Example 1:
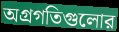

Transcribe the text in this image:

অগ্রগতিগুলোর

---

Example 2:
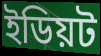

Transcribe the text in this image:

ইডিয়ট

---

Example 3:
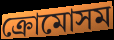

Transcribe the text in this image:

ক্রোমোসম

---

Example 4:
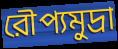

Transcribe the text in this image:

রৌপ্যমুদ্রা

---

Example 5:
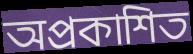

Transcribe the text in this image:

অপ্রকাশিত